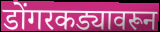
डोंगरकड्यावरून